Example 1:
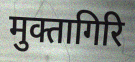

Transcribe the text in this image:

मुक्तागिरि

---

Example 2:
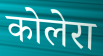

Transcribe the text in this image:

कोलेरा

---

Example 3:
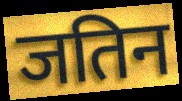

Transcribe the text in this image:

जतिन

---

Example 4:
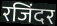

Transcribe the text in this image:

रजिंदर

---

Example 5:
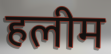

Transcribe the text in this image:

हलीम